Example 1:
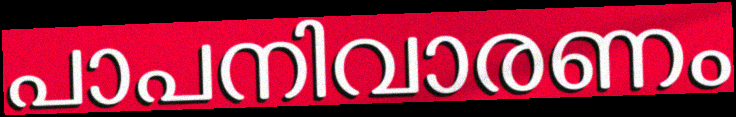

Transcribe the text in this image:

പാപനിവാരണം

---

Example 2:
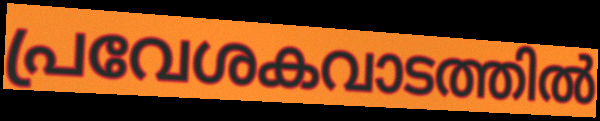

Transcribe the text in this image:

പ്രവേശകവാടത്തിൽ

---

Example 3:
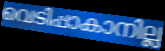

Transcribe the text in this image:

വെടിപ്പാകാനില്ല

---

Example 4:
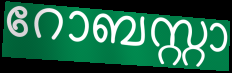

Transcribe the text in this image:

റോബസ്റ്റാ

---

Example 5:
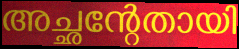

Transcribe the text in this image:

അച്ഛന്റേതായി